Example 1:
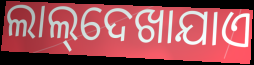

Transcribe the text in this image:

ଲାଲ୍‌ଦେଖାଯାଏ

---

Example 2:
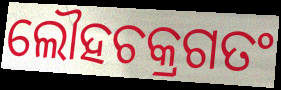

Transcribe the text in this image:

ଲୌହଚକ୍ରଗତଂ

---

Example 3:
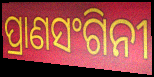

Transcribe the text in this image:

ପ୍ରାଣସଂଗିନୀ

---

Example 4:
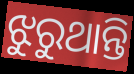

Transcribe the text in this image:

ଝୁରୁଥାନ୍ତି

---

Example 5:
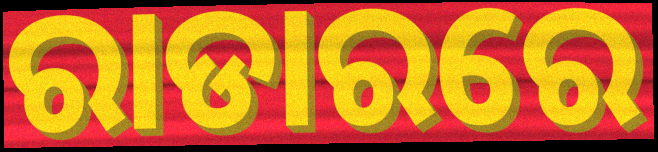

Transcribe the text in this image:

ରାଡାରରେ